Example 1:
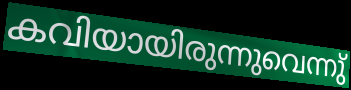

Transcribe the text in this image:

കവിയായിരുന്നുവെന്നു്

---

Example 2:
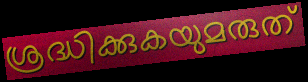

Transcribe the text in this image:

ശ്രദ്ധിക്കുകയുമരുത്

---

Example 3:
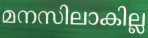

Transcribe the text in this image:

മനസിലാകില്ല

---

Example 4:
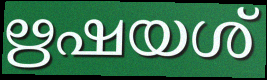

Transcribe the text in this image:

ഋഷയശ്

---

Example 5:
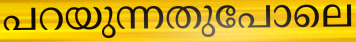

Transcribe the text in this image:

പറയുന്നതുപോലെ